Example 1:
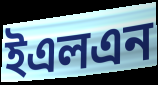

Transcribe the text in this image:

ইএলএন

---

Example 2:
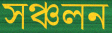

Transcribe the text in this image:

সঞ্চলন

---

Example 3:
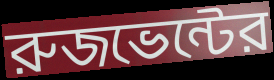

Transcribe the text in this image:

রুজভেন্টের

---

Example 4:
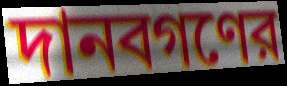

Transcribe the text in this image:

দানবগণের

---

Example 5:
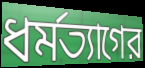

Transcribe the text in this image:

ধর্মত্যাগের